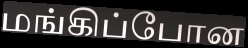
மங்கிப்போன